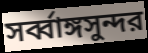
সর্ব্বাঙ্গসুন্দর